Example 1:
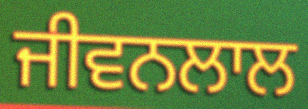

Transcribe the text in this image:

ਜੀਵਨਲਾਲ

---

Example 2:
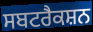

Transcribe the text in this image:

ਸਬਟਰੈਕਸ਼ਨ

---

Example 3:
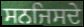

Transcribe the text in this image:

ਸਨਜਿਸਦੇ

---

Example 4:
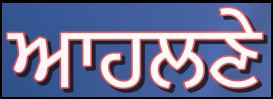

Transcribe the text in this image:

ਆਹਲਣੇ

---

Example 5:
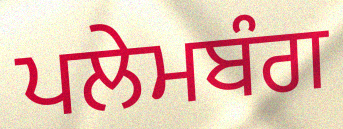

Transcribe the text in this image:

ਪਲੇਮਬੰਗ